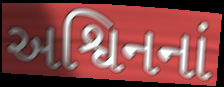
અશ્વિનનાં